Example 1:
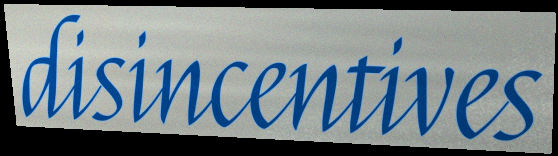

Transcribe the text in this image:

disincentives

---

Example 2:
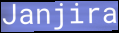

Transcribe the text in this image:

Janjira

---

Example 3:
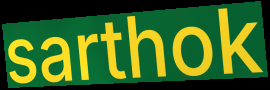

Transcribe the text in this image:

sarthok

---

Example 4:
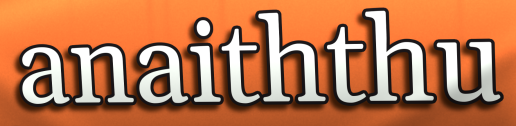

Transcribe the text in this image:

anaiththu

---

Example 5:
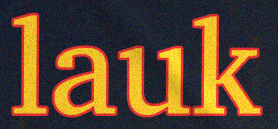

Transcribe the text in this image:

lauk